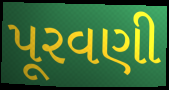
પૂરવણી